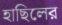
হাছিলের